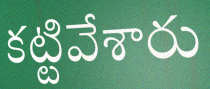
కట్టివేశారు